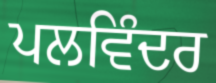
ਪਲਵਿੰਦਰ